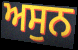
ਅਸੁਨ